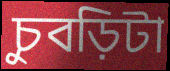
চুবড়িটা